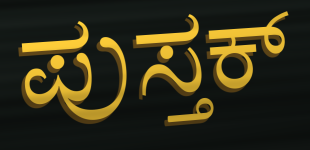
ಪುಸ್ತಕ್